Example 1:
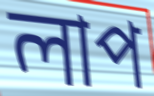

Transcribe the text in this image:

লাপ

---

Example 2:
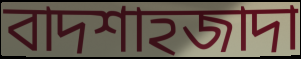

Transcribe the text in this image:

বাদশাহজাদা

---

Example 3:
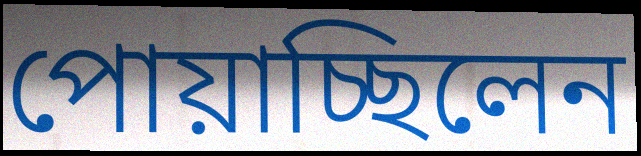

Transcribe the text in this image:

পোয়াচ্ছিলেন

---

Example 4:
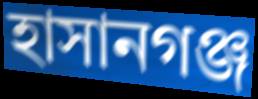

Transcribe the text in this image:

হাসানগঞ্জ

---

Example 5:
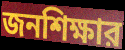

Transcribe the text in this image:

জনশিক্ষার